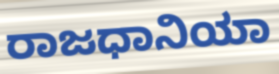
ರಾಜಧಾನಿಯಾ